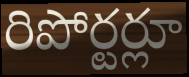
రిపోర్టర్లూ